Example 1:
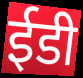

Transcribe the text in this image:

ईडी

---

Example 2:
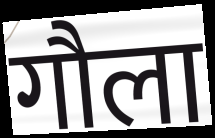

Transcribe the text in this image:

गौला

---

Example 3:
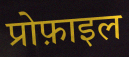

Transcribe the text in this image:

प्रोफ़ाइल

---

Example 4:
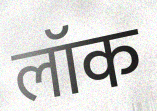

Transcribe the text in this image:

लॉक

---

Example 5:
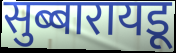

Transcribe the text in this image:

सुब्बारायडू